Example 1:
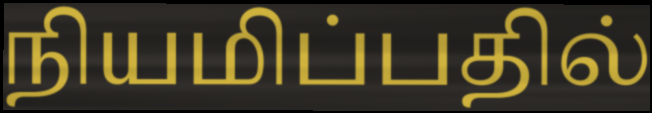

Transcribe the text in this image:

நியமிப்பதில்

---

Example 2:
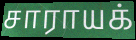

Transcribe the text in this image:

சாராயக்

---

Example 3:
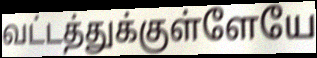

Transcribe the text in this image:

வட்டத்துக்குள்ளேயே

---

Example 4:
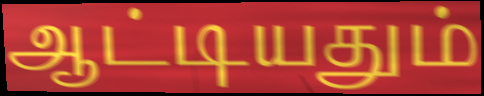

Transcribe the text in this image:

ஆட்டியதும்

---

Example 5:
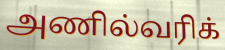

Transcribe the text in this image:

அணில்வரிக்